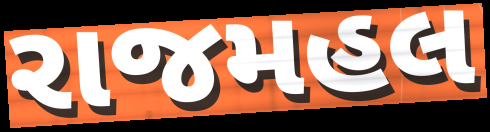
રાજમહલ